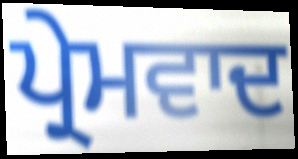
ਪ੍ਰੇਮਵਾਦ